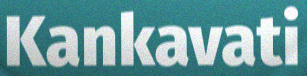
Kankavati